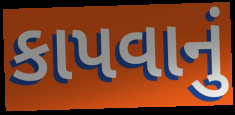
કાપવાનું